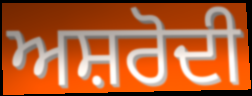
ਅਸ਼ਰੋਦੀ